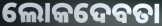
ଲୋକଦେବତା